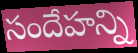
సందేహన్ని